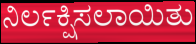
ನಿರ್ಲಕ್ಷಿಸಲಾಯಿತು